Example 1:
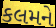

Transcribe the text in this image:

કલમને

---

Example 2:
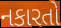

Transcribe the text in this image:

નકારતો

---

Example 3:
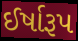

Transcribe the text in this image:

ઈર્ષારૂપ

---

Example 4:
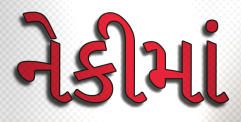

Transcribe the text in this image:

નેકીમાં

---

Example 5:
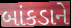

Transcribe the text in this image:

બાંકડાને